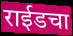
राईडचा